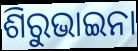
ଶିରୁଭାଇନା